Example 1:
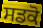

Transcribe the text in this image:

ਸਡਕੋ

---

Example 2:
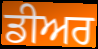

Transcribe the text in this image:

ਡੀਅਰ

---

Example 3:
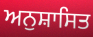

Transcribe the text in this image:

ਅਨੁਸ਼ਾਸਿਤ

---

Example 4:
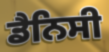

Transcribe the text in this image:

ਡੈਨਿਸੀ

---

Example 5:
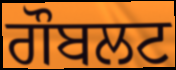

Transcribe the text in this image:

ਗੌਬਲਟ